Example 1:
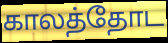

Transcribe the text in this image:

காலத்தோட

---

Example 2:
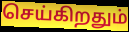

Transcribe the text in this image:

செய்கிறதும்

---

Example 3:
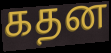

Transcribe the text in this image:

கதன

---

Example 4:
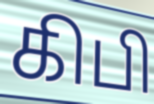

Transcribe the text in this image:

கிபி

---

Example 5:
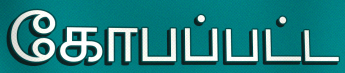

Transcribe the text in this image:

கோபப்பட்ட